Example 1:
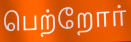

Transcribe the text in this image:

பெற்றோர்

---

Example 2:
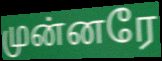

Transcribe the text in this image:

முன்னரே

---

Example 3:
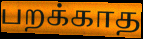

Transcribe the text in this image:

பறக்காத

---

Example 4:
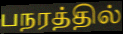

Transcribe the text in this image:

பநரத்தில்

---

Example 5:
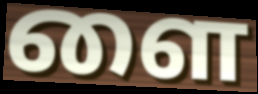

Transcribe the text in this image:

ளை